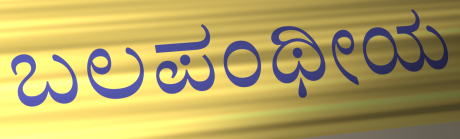
ಬಲಪಂಥೀಯ